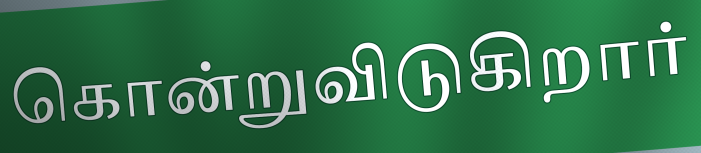
கொன்றுவிடுகிறார்